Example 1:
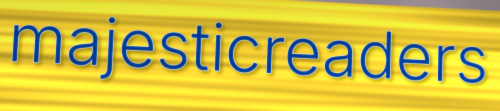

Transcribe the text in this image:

majesticreaders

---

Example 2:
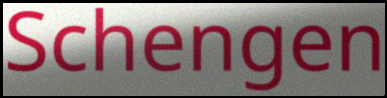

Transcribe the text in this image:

Schengen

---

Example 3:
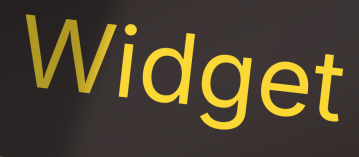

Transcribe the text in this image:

Widget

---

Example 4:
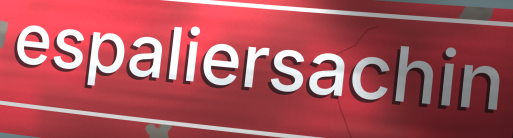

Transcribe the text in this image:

espaliersachin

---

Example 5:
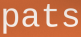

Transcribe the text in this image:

pats